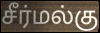
சீர்மல்கு